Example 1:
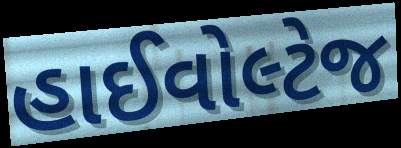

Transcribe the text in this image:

હાઈવોલ્ટેજ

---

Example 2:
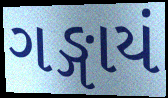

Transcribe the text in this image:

ગઙ્ગાયં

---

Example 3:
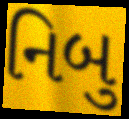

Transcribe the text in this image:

નિબુ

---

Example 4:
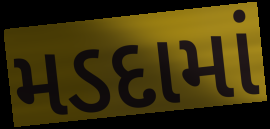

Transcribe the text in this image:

મડદામાં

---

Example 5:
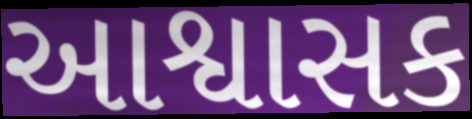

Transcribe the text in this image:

આશ્વાસક